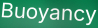
Buoyancy